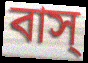
বাস্